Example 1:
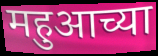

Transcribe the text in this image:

महुआच्या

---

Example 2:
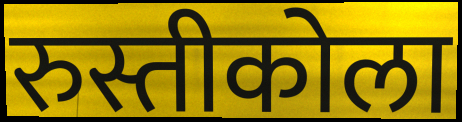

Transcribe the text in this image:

रुस्तीकोला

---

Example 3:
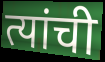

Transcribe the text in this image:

त्‍यांची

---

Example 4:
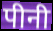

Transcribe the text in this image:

पीनी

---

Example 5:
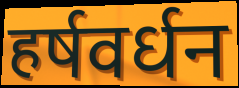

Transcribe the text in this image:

हर्षवर्धन